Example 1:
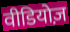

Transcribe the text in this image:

वीडियोज़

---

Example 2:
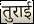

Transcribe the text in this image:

तुराई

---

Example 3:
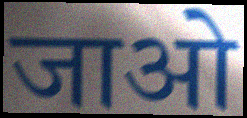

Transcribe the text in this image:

जाओ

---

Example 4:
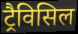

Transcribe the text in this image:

ट्रैविसिल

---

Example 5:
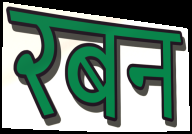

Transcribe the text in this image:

रबन